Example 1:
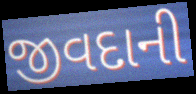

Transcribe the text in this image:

જીવદાની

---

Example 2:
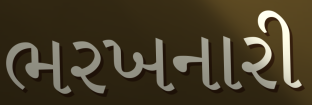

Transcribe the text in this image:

ભરખનારી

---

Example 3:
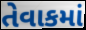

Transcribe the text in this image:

તેવાકમાં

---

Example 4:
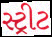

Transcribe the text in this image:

સ્ટ્રીટ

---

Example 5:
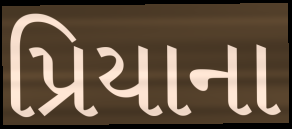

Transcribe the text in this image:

પ્રિયાના